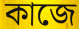
কাজে